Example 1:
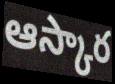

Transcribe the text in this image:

ఆస్కార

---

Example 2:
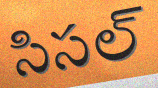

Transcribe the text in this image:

సిసల్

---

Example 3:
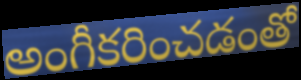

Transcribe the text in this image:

అంగీకరించడంతో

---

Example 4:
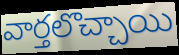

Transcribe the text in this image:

వార్తలొచ్చాయి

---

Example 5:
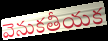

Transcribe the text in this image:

వెనుకతీయక